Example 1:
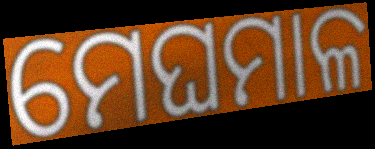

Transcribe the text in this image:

ମେଘମାଳ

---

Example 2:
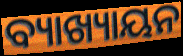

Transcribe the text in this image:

ବ୍ୟାଖ୍ୟାୟନ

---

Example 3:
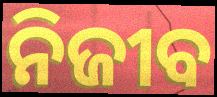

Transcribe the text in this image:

ନିଜୀବ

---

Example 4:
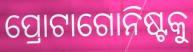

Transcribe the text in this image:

ପ୍ରୋଟାଗୋନିଷ୍ଟକୁ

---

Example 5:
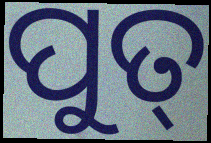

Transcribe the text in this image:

ପୁତ୍